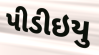
પીડીઇયુ